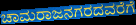
ಚಾಮರಾಜನಗರದವರೆಗೆ